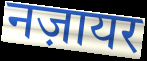
नज़ायर